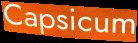
Capsicum